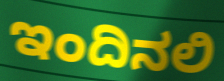
ಇಂದಿನಲಿ